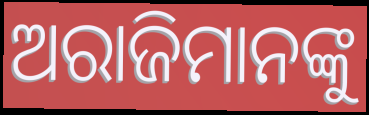
ଅରାଜିମାନଙ୍କୁ